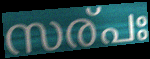
സര്പഃ